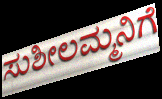
ಸುಶೀಲಮ್ಮನಿಗೆ